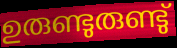
ഉരുണ്ടുരുണ്ടു്